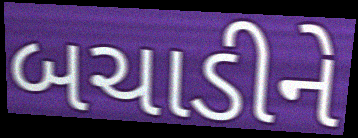
બચાડીને